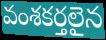
వంశకర్తలైన